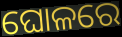
ଘୋଳରେ